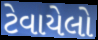
ટેવાયેલો